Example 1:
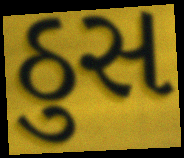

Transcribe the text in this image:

ઠુસ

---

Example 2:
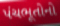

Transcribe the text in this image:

પંચભૂતોનો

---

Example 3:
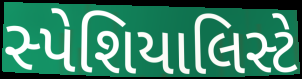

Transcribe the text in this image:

સ્પેશિયાલિસ્ટે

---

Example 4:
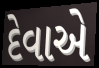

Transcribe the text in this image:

દેવાએ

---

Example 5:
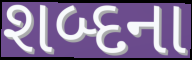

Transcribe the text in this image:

શબ્દના